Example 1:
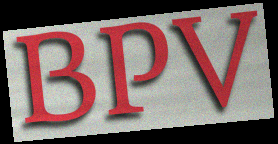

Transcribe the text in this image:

BPV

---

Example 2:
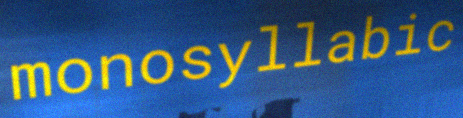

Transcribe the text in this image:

monosyllabic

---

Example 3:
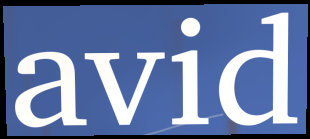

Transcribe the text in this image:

avid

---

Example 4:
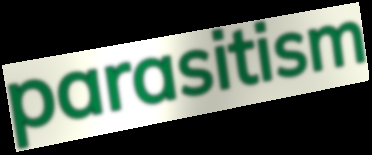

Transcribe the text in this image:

parasitism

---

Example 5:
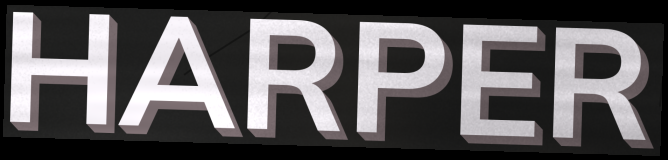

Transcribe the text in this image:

HARPER